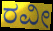
ರವೀ